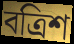
বত্ৰিশ